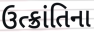
ઉત્ક્રાંતિના